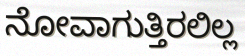
ನೋವಾಗುತ್ತಿರಲಿಲ್ಲ